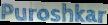
Puroshkar